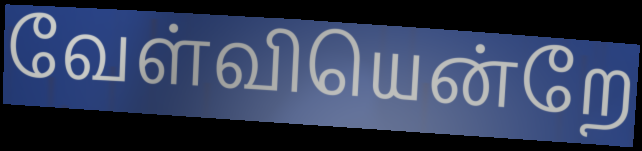
வேள்வியென்றே